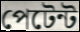
পেটেন্ট